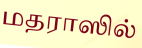
மதராஸில்